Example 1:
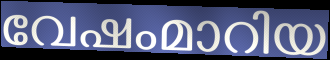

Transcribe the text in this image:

വേഷംമാറിയ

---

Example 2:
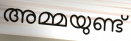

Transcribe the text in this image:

അമ്മയുണ്ട്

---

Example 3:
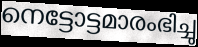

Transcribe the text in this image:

നെട്ടോട്ടമാരംഭിച്ചു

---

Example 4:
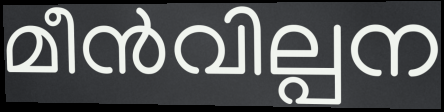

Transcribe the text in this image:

മീൻവില്പന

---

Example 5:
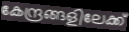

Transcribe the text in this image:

കേന്ദ്രങ്ങളിലേക്ക്